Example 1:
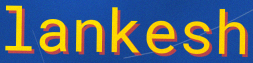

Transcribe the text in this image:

lankesh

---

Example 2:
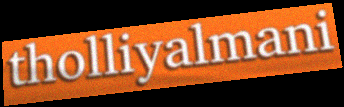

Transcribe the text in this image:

tholliyalmani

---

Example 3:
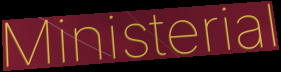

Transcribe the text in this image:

Ministerial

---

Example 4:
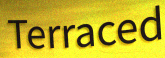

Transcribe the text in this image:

Terraced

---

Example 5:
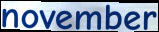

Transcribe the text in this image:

november